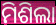
ମିଶିଲା